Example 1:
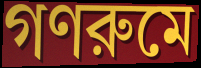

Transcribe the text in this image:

গণরুমে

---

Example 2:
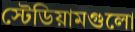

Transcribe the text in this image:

স্টেডিয়ামগুলো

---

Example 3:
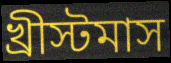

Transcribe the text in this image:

খ্রীস্টমাস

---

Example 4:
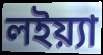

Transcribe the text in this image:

লইয়্যা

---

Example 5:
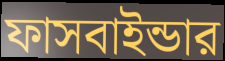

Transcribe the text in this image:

ফাসবাইন্ডার